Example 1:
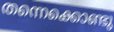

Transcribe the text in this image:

തന്നെക്കൊണ്ടു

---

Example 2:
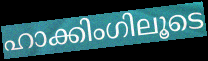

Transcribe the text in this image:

ഹാക്കിംഗിലൂടെ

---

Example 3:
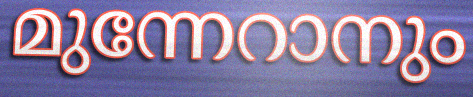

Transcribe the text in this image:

മുന്നേറാനും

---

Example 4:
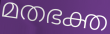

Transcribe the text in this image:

മതഭക്ത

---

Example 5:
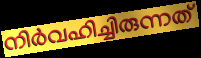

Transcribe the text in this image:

നിർവഹിച്ചിരുന്നത്